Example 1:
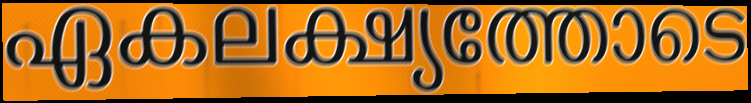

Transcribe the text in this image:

ഏകലക്ഷ്യത്തോടെ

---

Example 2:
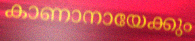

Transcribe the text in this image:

കാണാനായേക്കും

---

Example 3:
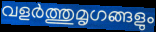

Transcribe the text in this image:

വളർത്തുമൃഗങ്ങളും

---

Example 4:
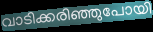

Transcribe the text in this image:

വാടിക്കരിഞ്ഞുപോയി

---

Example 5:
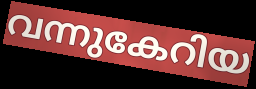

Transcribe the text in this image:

വന്നുകേറിയ